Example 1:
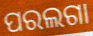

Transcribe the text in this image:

ପରଲଗା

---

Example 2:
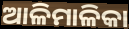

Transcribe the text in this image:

ଆଳିମାଳିକା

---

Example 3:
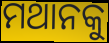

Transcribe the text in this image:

ମଥାନକୁ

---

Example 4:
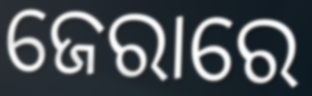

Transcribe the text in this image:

ଜେରାରେ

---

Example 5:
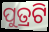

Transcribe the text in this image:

ପୁତ୍ରଟି